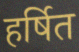
हर्षित